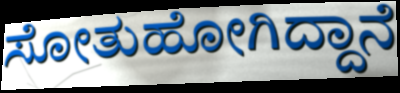
ಸೋತುಹೋಗಿದ್ದಾನೆ